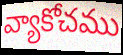
వ్యాకోచము